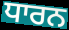
ਧਾਰਨ